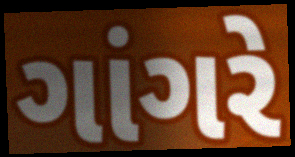
ગાંગરે